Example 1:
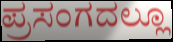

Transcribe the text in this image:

ಪ್ರಸಂಗದಲ್ಲೂ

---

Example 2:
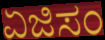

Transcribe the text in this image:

ಏಜಿಸಂ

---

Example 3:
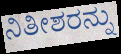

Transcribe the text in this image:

ನಿತೀಶರನ್ನು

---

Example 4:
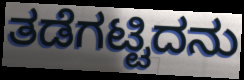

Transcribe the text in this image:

ತಡೆಗಟ್ಟಿದನು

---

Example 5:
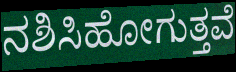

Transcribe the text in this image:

ನಶಿಸಿಹೋಗುತ್ತವೆ